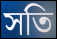
সতি